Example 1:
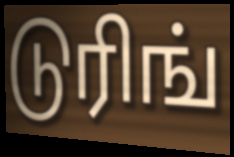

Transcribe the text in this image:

டுரிங்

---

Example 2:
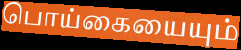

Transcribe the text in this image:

பொய்கையையும்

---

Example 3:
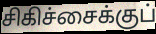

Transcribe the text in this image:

சிகிச்சைக்குப்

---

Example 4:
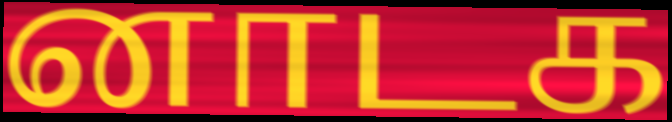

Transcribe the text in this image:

னாடக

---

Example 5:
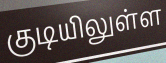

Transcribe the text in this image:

குடியிலுள்ள